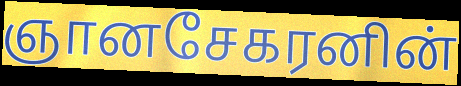
ஞானசேகரனின்